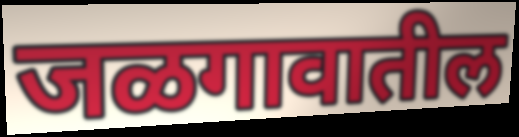
जळगावातील